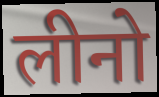
लीनो